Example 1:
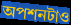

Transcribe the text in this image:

অপশনটাও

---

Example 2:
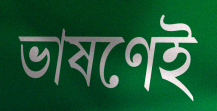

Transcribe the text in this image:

ভাষণেই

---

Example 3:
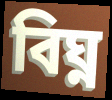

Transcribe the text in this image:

বিঘ্ন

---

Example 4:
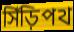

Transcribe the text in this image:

সিঁড়িপথ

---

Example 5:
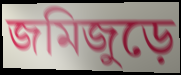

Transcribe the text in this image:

জমিজুড়ে